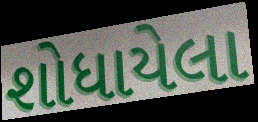
શોધાયેલા